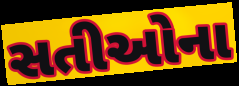
સતીઓના